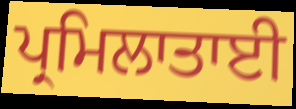
ਪ੍ਰਮਿਲਾਤਾਈ